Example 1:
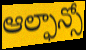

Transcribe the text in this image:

ఆల్ఫాన్సో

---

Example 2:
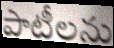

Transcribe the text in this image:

పాటీలను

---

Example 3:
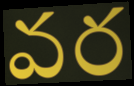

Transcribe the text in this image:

వర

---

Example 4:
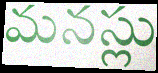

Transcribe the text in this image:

మనస్లు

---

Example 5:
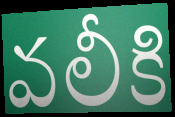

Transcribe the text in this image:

వలీకి